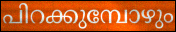
പിറക്കുമ്പോഴും